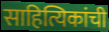
साहित्यिकांची